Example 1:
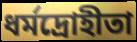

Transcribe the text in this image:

ধর্মদ্রোহীতা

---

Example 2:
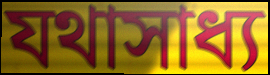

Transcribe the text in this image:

যথাসাধ্য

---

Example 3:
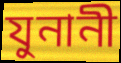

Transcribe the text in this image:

যুনানী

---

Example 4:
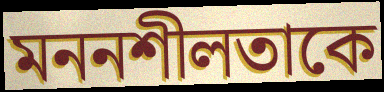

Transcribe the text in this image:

মননশীলতাকে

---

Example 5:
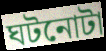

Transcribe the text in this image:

ঘটনোটা